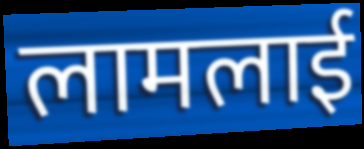
लामलाई